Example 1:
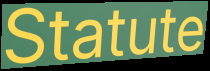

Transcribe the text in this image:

Statute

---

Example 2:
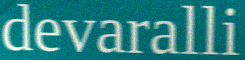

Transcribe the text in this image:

devaralli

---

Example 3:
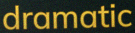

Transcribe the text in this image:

dramatic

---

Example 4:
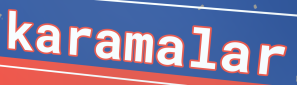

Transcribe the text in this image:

karamalar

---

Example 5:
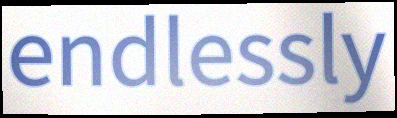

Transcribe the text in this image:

endlessly